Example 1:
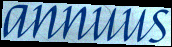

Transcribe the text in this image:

annuus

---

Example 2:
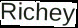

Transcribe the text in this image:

Richey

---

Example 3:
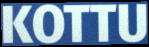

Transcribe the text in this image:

KOTTU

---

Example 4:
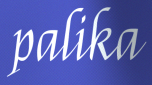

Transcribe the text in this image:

palika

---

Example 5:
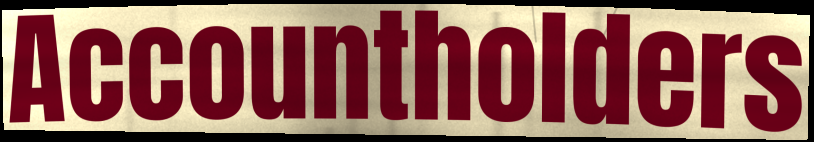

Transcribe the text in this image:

Accountholders